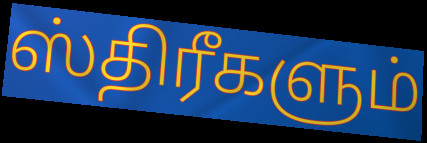
ஸ்திரீகளும்